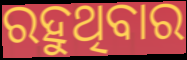
ରହୁଥିବାର